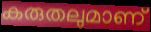
കരുതലുമാണ്